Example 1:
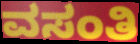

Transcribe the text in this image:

ವಸಂತಿ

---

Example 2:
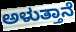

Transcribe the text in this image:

ಅಳುತ್ತಾನೆ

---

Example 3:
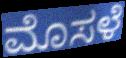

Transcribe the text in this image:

ಮೊಸಳೆ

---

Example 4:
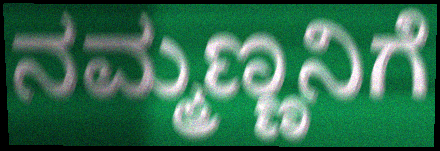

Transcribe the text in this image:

ನಮ್ಮಣ್ಣನಿಗೆ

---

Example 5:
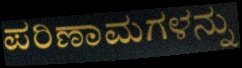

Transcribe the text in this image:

ಪರಿಣಾಮಗಳನ್ನು